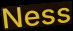
Ness